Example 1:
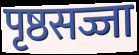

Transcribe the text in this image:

पृष्ठसज्जा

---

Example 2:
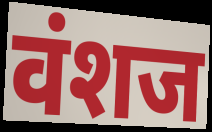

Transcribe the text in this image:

वंशज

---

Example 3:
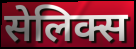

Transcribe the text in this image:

सेलिक्स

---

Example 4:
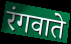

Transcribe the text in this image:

रंगवाते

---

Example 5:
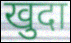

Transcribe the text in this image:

खुदा